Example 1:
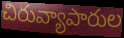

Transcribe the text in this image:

చిరువ్యాపారుల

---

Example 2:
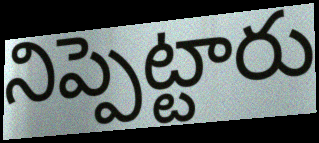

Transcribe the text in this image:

నిప్పెట్టారు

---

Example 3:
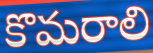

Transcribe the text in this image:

కొమరాలి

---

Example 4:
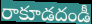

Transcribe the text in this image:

రాకూడదండీ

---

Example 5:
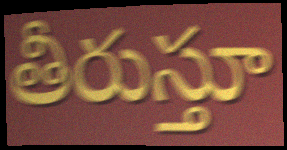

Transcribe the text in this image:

తీరుస్తూ